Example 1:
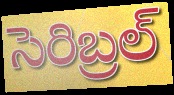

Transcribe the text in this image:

సెరిబ్రల్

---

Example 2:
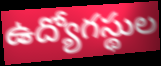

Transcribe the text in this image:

ఉద్యోగస్థుల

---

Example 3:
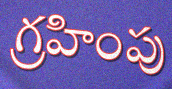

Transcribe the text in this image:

గ్రహింపు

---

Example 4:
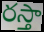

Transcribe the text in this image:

రస్తా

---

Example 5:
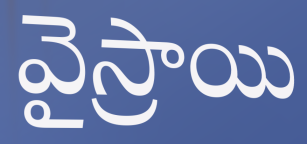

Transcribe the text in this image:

వైస్రాయి